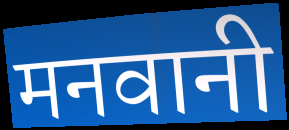
मनवानी